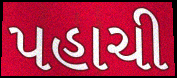
પહાચી